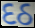
દઠ